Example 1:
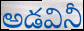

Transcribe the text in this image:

అడవినీ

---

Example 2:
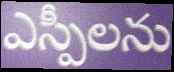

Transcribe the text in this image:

ఎస్పీలను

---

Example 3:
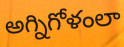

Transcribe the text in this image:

అగ్నిగోళంలా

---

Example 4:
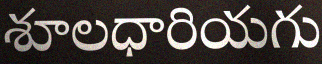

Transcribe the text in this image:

శూలధారియగు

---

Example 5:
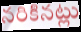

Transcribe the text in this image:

నరికినట్లు